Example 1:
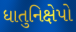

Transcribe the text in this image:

ધાતુનિક્ષેપો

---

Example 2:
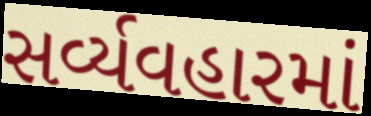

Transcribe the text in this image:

સર્વ્યવહારમાં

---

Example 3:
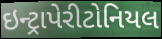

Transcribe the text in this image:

ઇન્ટ્રાપેરીટોનિયલ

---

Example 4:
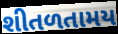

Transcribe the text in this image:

શીતળતામય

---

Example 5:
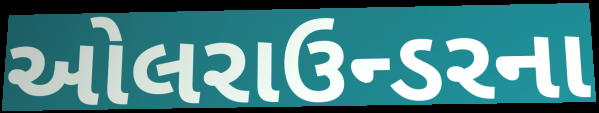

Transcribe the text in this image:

ઓલરાઉન્ડરના